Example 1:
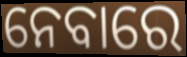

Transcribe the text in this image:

ନେବାରେ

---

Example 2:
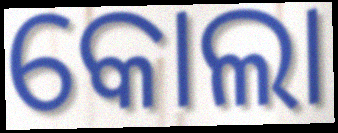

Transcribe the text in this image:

କୋଲା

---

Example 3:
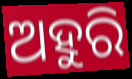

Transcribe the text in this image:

ଅହୁରି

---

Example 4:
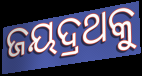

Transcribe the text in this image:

ଜୟଦ୍ରଥକୁ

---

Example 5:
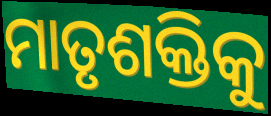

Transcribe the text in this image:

ମାତୃଶକ୍ତିକୁ